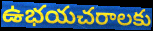
ఉభయచరాలకు